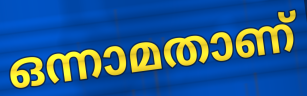
ഒന്നാമതാണ്